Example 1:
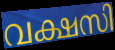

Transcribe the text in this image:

വക്ഷസി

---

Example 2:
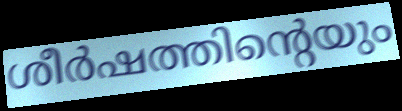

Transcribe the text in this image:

ശീർഷത്തിന്റെയും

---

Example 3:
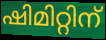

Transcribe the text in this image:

ഷിമിറ്റിന്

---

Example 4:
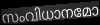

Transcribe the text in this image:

സംവിധാനമോ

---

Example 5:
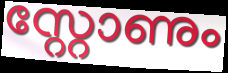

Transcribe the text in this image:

സ്റ്റോണും